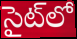
సైట్‌లో